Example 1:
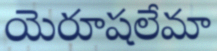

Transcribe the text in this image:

యెరూషలేమా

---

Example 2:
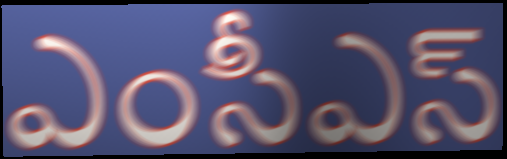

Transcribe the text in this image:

ఎంసీఎస్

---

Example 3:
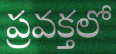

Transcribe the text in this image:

ప్రవక్తలో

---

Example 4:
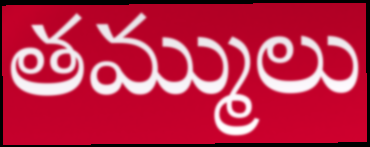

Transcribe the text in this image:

తమ్ములు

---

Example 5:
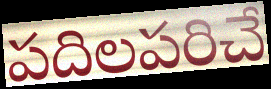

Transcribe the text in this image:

పదిలపరిచే